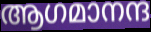
ആഗമാനന്ദ